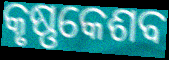
କୃଷ୍ଣକେଶବ